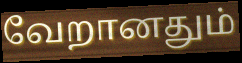
வேறானதும்